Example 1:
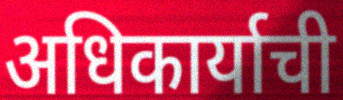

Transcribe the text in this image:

अधिकार्याची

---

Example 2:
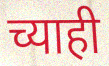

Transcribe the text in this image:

च्याही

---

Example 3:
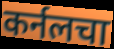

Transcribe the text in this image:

कर्नलचा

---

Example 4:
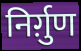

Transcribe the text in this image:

निर्ग़ुण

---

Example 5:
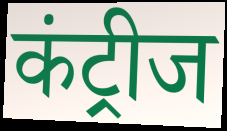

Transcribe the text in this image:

कंट्रीज